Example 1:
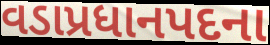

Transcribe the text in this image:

વડાપ્રધાનપદના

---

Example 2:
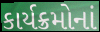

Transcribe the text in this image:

કાર્યક્રમોનાં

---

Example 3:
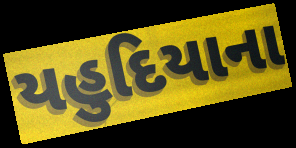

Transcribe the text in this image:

યહુદિયાના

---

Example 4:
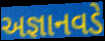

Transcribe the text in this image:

અજ્ઞાનવડે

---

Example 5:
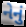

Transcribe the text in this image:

નેનું